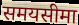
समयसीमा